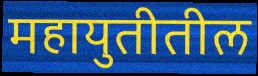
महायुतीतील